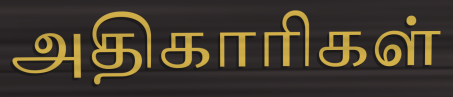
அதிகாரிகள்